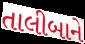
તાલીબાને